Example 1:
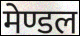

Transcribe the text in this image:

मेण्डल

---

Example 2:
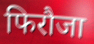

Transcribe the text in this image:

फिरौजा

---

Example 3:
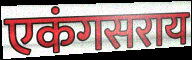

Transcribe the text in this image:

एकंगसराय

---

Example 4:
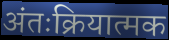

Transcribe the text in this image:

अंतःक्रियात्मक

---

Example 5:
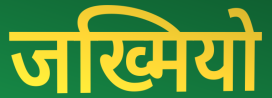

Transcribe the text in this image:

जख्मियो